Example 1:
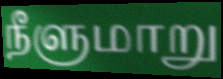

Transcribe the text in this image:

நீளுமாறு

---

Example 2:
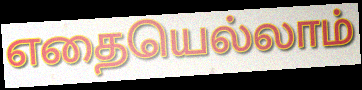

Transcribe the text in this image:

எதையெல்லாம்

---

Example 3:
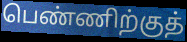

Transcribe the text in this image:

பெண்ணிற்குத்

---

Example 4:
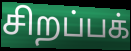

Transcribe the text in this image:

சிறப்பக்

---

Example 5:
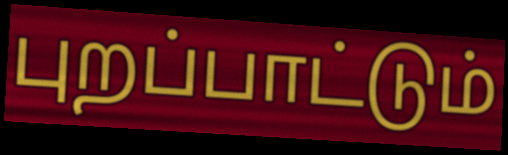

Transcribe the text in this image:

புறப்பாட்டும்